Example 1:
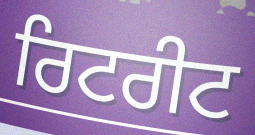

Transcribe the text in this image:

ਰਿਟਰੀਟ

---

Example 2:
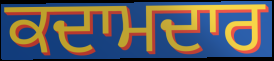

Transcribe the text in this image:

ਕਦਾਮਦਾਰ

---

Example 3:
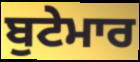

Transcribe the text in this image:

ਬੁਟੇਮਾਰ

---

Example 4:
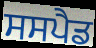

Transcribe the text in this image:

ਸਸਪੈਡ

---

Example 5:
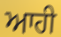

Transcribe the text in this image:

ਆਹੀ